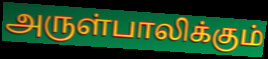
அருள்பாலிக்கும்